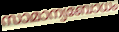
സാമാന്യബോധം